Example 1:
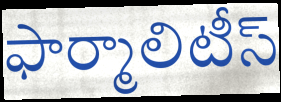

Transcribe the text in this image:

ఫార్మాలిటీస్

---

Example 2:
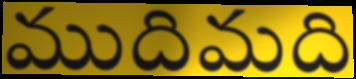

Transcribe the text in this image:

ముదిమది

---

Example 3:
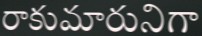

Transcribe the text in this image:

రాకుమారునిగా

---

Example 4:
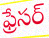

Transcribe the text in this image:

ఫ్రేసర్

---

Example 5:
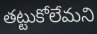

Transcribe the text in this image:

తట్టుకోలేమని